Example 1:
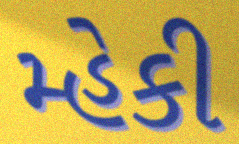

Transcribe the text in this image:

મ્હેકી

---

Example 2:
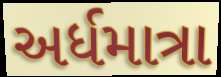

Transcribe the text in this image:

અર્ધમાત્રા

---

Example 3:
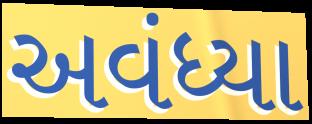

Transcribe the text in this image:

અવંધ્યા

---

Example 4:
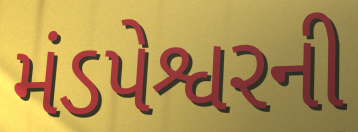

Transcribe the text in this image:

મંડપેશ્વરની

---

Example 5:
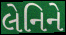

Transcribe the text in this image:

લેનિને